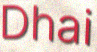
Dhai